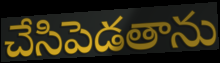
చేసిపెడతాను